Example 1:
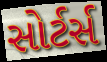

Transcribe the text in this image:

સોર્ટર્સ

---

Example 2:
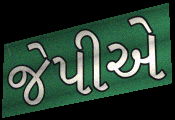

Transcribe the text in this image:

જેપીએ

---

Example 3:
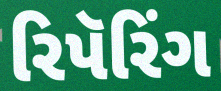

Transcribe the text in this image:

રિપૅરિંગ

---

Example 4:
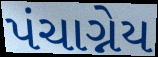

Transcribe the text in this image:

પંચાગ્નેય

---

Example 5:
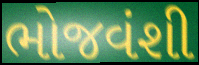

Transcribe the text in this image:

ભોજવંશી